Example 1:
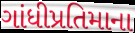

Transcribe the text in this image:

ગાંધીપ્રતિમાના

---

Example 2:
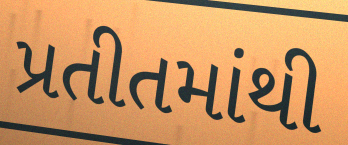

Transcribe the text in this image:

પ્રતીતમાંથી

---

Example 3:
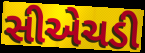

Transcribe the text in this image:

સીએચડી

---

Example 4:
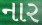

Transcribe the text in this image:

નાર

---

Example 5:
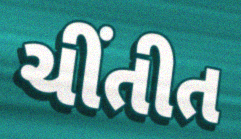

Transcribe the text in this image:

ચીંતીત